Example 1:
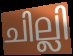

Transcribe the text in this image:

ചില്ലി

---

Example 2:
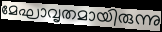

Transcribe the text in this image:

മേഘാവൃതമായിരുന്നു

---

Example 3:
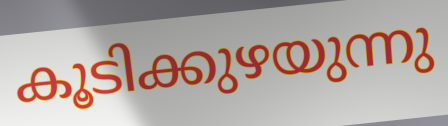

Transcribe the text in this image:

കൂടിക്കുഴയുന്നു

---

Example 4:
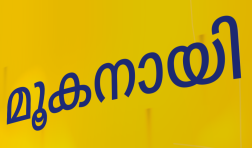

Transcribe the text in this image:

മൂകനായി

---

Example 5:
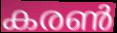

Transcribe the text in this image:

കരൺ